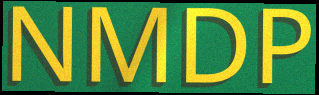
NMDP